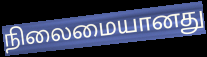
நிலைமையானது